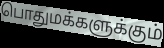
பொதுமக்களுக்கும்